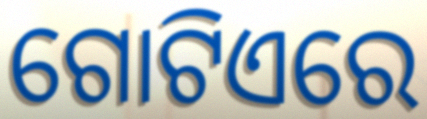
ଗୋଟିଏରେ